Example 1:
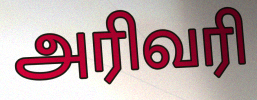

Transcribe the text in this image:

அரிவரி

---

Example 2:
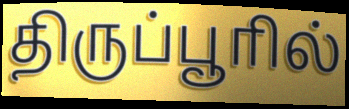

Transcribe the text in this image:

திருப்பூரில்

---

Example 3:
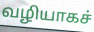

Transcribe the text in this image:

வழியாகச்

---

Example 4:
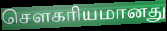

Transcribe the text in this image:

சௌகரியமானது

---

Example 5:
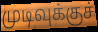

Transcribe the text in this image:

முடிவுக்குச்